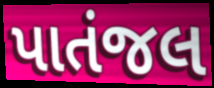
પાતંજલ